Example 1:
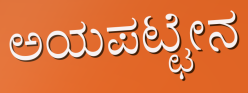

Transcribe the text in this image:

ಅಯಪಟ್ಟೇನ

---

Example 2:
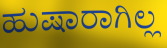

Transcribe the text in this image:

ಹುಷಾರಾಗಿಲ್ಲ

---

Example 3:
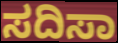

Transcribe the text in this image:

ಸದಿಸಾ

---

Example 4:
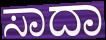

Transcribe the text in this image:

ಸಾದಾ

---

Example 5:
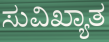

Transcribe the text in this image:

ಸುವಿಖ್ಯಾತ